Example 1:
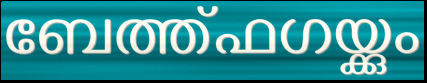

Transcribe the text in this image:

ബേത്ത്ഫഗയ്ക്കും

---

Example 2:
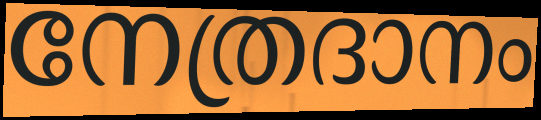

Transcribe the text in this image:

നേത്രദാനം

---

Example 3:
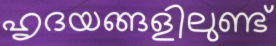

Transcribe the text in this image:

ഹൃദയങ്ങളിലുണ്ട്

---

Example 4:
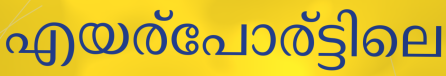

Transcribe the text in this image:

എയര്പോര്ട്ടിലെ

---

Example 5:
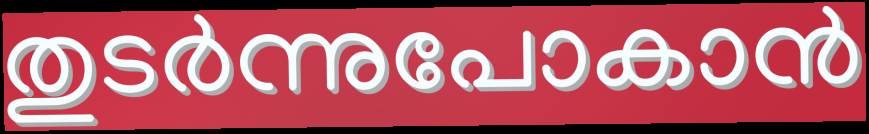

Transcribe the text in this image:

തുടർന്നുപോകാൻ